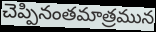
చెప్పినంతమాత్రమున